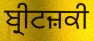
ਬ੍ਰੀਟਜ਼ਕੀ